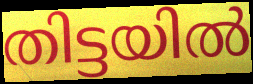
തിട്ടയിൽ